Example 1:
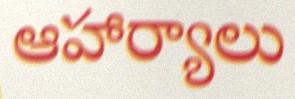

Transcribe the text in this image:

ఆహార్యాలు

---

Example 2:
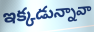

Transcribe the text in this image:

ఇక్కడున్నావా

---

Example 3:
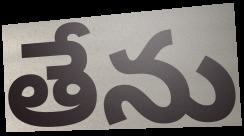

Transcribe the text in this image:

తేను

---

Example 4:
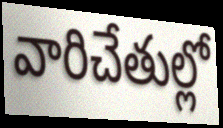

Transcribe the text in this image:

వారిచేతుల్లో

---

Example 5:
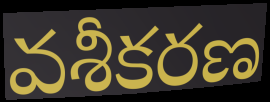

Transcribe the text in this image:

వశీకరణ